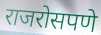
राजरोसपणे